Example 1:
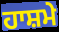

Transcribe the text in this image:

ਹਾਸ਼ਮੇ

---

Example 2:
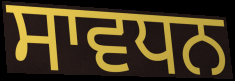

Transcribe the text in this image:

ਸਾਵਧਨ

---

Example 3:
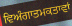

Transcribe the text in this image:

ਵਿਅੰਗਾਤਮਕਤਾਵਾਂ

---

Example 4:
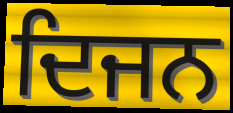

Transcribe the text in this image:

ਦਿਜਨ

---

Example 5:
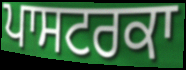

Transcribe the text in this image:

ਪਾਸਟਰਕਾ